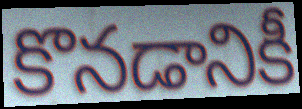
కొనడానికీ